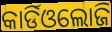
କାର୍ଡିଓଲୋଜି